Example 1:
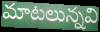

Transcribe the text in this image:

మాటలున్నవి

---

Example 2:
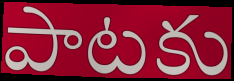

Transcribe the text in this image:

పాటకు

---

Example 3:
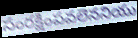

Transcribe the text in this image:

సంరక్షింపవలెననియు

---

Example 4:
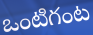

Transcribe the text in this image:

ఒంటిగంట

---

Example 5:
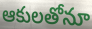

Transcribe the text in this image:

ఆకులతోనూ